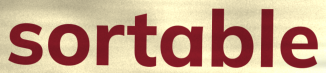
sortable